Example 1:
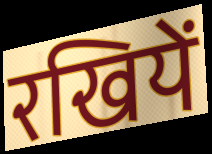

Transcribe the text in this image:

रखियें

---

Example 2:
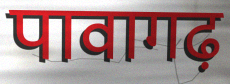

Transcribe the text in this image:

पावागढ़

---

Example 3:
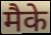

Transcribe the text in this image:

मैके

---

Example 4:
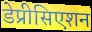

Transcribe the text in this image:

डेप्रीसिएशन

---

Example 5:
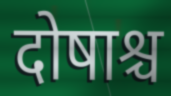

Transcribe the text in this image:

दोषाश्च